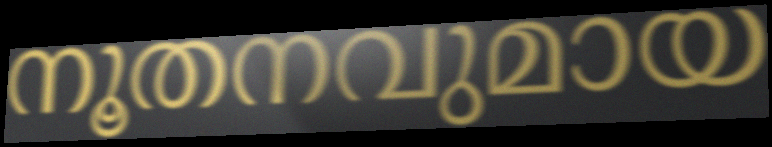
നൂതനവുമായ